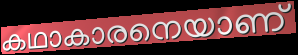
കഥാകാരനെയാണ്